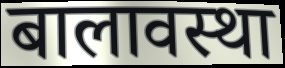
बालावस्था